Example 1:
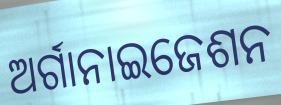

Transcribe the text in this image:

ଅର୍ଗାନାଇଜେଶନ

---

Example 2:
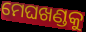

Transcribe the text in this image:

ମେଘଖଣ୍ଡକୁ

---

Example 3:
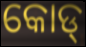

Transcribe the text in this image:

କୋଡ୍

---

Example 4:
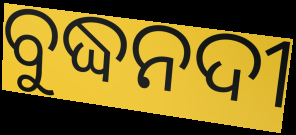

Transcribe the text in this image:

ବୁଦ୍ଧନଦୀ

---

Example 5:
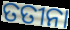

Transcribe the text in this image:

ତତୀନା